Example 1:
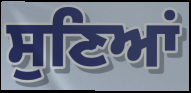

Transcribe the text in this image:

ਸੁਣਿਆਂ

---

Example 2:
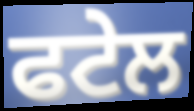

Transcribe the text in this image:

ਫਟੇਲ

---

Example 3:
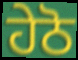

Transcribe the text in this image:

ਹੇਠੋ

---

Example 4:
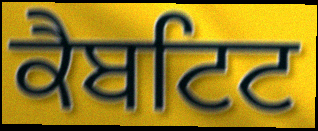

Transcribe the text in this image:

ਕੈਬਟਿਟ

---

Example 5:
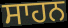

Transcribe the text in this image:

ਸਾਹਨ